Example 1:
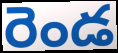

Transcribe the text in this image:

రెండ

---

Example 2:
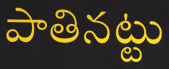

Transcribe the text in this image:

పాతినట్టు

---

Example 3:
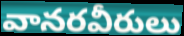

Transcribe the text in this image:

వానరవీరులు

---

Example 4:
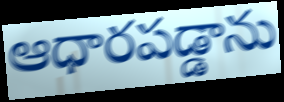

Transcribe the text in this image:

ఆధారపడ్డాను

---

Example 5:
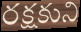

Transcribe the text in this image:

రక్షకుని